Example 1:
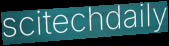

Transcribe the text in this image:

scitechdaily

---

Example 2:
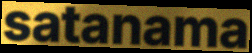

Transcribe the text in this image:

satanama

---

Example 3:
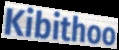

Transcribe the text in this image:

Kibithoo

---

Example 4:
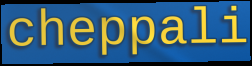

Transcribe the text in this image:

cheppali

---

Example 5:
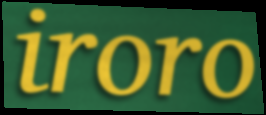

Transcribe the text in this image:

iroro